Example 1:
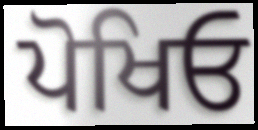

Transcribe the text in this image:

ਪੋਖਿਓ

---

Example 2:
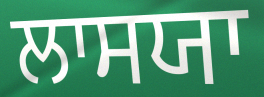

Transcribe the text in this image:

ਲਾਸਯਾ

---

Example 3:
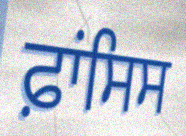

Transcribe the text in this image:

ਫ਼ਾਂਸਿਸ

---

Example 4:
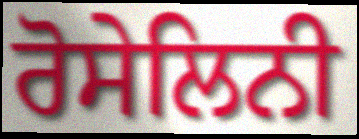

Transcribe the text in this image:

ਰੋਸੇਲਿਨੀ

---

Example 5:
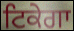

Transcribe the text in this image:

ਟਿਕੇਗਾ